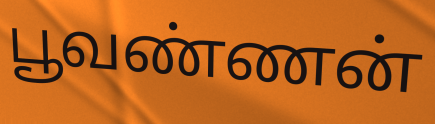
பூவண்ணன்